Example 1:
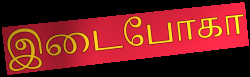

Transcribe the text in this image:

இடைபோகா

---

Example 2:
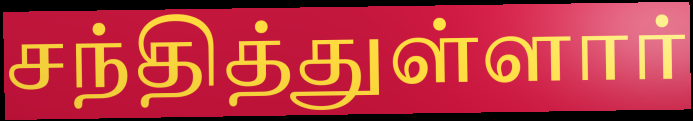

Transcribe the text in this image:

சந்தித்துள்ளார்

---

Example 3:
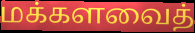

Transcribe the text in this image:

மக்களவைத்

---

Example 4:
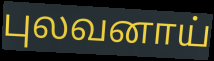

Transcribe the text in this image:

புலவனாய்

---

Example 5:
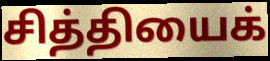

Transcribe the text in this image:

சித்தியைக்